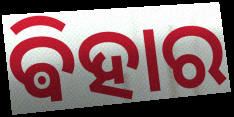
ଵିହାର